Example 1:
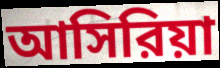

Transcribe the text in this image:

আসিরিয়া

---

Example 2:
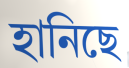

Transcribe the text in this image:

হানিছে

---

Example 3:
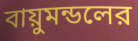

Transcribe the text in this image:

বায়ুমন্ডলের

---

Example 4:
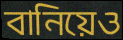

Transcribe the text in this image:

বানিয়েও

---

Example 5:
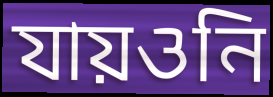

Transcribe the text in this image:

যায়ওনি